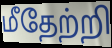
மீதேற்றி